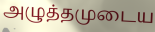
அழுத்தமுடைய